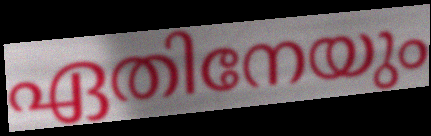
ഏതിനേയും